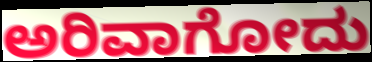
ಅರಿವಾಗೋದು